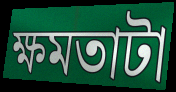
ক্ষমতাটা